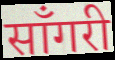
साँगरी